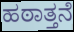
ಹಠಾತ್ತನೆ